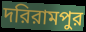
দরিরামপুর